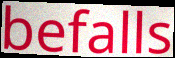
befalls